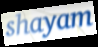
shayam